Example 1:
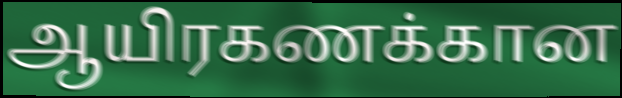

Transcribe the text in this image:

ஆயிரகணக்கான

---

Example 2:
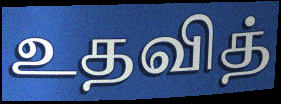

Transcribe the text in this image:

உதவித்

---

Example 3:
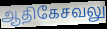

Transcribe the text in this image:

ஆதிகேசவலு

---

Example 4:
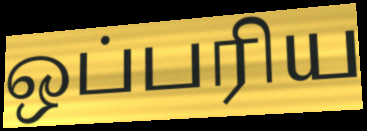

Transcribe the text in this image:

ஒப்பரிய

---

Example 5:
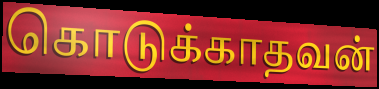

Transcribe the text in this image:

கொடுக்காதவன்